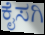
ಕೈಸಗಿ